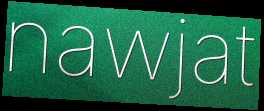
nawjat